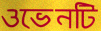
ওভেনটি